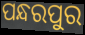
ପନ୍ଧରପୁର